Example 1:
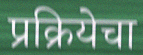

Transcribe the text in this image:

प्रक्रियेचा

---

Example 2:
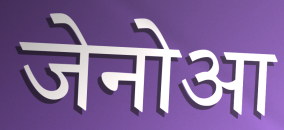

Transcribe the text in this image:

जेनोआ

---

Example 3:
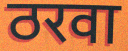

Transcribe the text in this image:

ठरवा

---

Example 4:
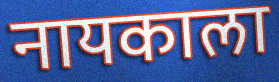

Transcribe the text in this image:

नायकाला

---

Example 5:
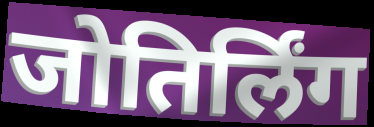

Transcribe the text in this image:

जोतिर्लिंग